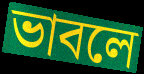
ভাবলে